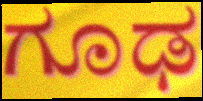
ಗೂಢ